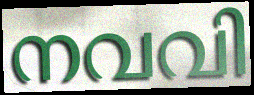
നവവി